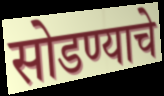
सोडण्याचे